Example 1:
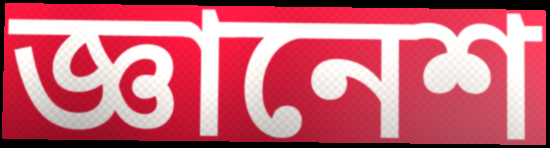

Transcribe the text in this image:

জ্ঞানেশ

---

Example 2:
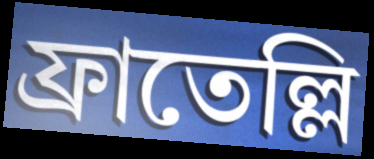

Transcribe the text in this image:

ফ্রাতেল্লি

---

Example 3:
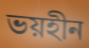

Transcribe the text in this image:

ভয়হীন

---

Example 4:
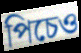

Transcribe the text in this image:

পিচেও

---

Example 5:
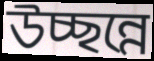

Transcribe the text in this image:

উচ্ছন্নে